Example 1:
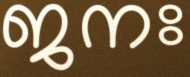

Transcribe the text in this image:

ജനഃ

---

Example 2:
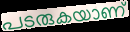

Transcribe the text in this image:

പടരുകയാണ്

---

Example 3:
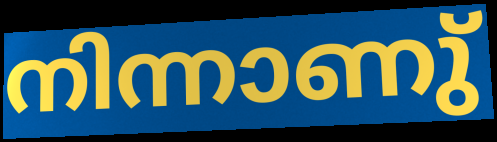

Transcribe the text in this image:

നിന്നാണു്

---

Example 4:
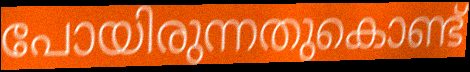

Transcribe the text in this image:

പോയിരുന്നതുകൊണ്ട്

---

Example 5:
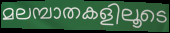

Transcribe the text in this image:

മലമ്പാതകളിലൂടെ